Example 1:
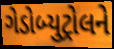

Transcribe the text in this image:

ગેડોબ્યુટ્રોલને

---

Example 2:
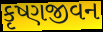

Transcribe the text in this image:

કૃષ્ણજીવન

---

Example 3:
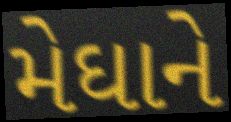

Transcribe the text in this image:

મેઘાને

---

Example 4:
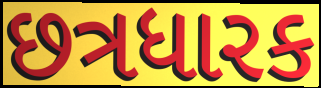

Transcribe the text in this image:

છત્રધારક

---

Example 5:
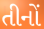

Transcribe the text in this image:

તીનોં